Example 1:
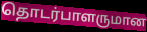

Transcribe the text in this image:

தொடர்பாளருமான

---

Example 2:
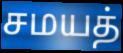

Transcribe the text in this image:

சமயத்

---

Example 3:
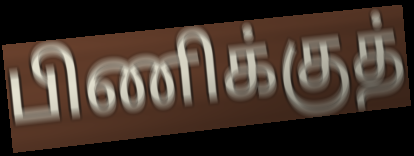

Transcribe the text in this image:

பிணிக்குத்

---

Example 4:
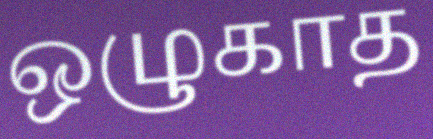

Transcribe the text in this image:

ஒழுகாத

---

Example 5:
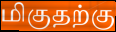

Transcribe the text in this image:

மிகுதற்கு